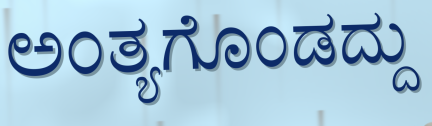
ಅಂತ್ಯಗೊಂಡದ್ದು